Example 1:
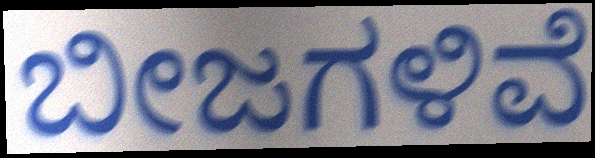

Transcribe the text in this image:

ಬೀಜಗಳಿವೆ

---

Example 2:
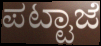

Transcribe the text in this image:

ಪಟ್ಟಾಜೆ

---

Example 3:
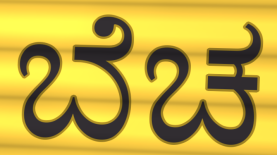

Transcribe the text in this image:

ಬೆಚ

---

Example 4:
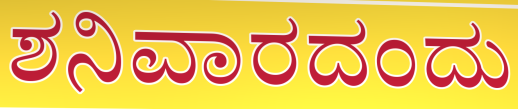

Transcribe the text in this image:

ಶನಿವಾರದಂದು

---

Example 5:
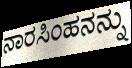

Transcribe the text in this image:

ನಾರಸಿಂಹನನ್ನು